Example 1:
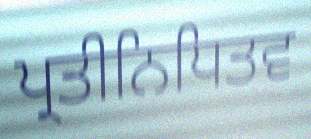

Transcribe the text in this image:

ਪ੍ਰਤੀਨਿਧਿਤਵ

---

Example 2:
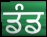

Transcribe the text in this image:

ਡੰਡ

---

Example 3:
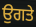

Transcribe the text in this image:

ਉਗਤੇ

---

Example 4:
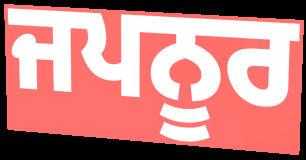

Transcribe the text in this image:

ਜਪਨੂਰ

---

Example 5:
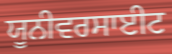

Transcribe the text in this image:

ਯੂਨੀਵਰਸਾਈਟ